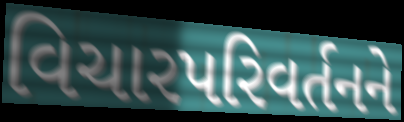
વિચારપરિવર્તનને